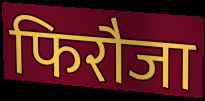
फिरौजा